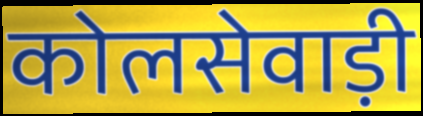
कोलसेवाड़ी